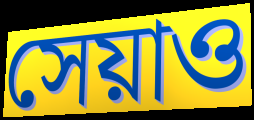
সেয়াও